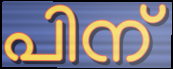
പിന്